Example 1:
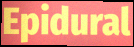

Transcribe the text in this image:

Epidural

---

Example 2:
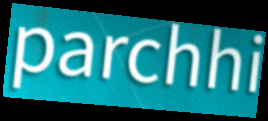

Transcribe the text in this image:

parchhi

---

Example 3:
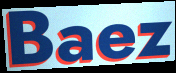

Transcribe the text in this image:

Baez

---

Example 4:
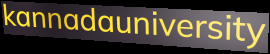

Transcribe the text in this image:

kannadauniversity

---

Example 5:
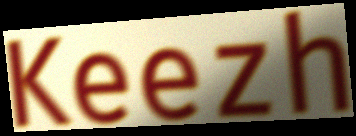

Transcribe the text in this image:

Keezh